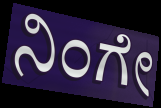
ನಿಂಗೇ